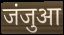
जंजुआ